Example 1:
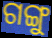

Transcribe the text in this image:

ଗଙ୍ଗୁ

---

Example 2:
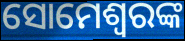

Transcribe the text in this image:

ସୋମେଶ୍ୱରଙ୍କ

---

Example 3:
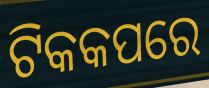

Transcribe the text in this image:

ଟିକକପରେ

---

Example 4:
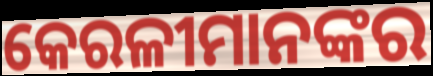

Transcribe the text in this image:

କେରଳୀମାନଙ୍କର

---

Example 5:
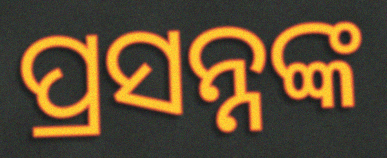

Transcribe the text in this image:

ପ୍ରସନ୍ନଙ୍କ